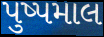
પુષ્પમાલ